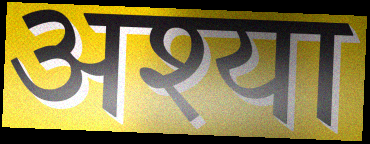
अश्या